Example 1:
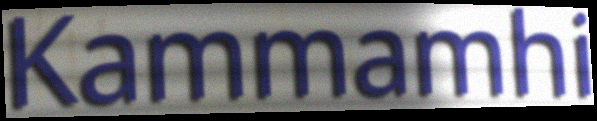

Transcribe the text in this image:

Kammamhi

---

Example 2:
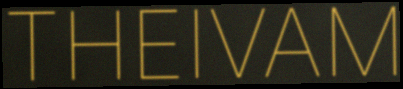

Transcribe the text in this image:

THEIVAM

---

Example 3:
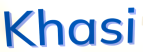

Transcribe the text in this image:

Khasi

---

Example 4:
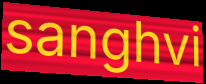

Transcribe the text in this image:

sanghvi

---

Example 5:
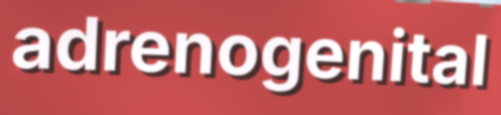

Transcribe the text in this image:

adrenogenital